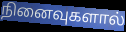
நினைவுகளால்